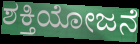
ಶಕ್ತಿಯೋಜನೆ